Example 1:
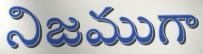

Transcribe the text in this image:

నిజముగా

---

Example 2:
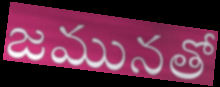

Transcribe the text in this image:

జమునతో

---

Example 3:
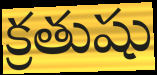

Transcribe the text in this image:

క్రతుషు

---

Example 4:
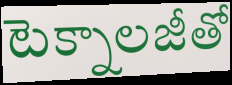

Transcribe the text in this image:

టెక్నాలజీతో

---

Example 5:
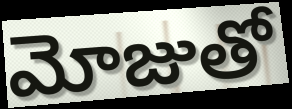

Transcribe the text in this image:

మోజుతో